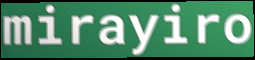
mirayiro